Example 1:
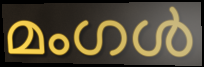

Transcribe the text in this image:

മംഗൾ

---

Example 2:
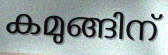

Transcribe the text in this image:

കമുങ്ങിന്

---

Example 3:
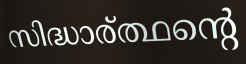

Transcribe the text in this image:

സിദ്ധാര്ത്ഥന്റെ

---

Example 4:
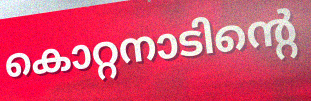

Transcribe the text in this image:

കൊറ്റനാടിന്റെ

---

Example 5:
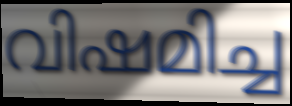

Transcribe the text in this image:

വിഷമിച്ച